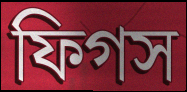
ফিগস